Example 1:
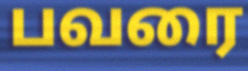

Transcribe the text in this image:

பவரை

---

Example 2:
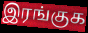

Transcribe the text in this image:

இரங்குக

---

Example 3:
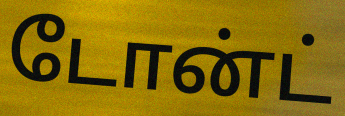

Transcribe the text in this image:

டோன்ட்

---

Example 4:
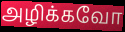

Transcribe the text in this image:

அழிக்கவோ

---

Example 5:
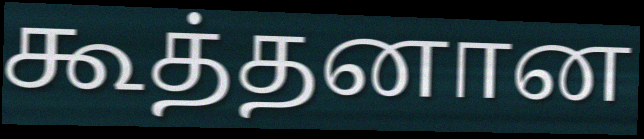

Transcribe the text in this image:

கூத்தனான